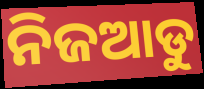
ନିଜଆଡୁ